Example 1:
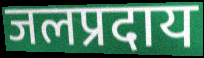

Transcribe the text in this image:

जलप्रदाय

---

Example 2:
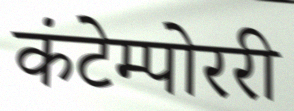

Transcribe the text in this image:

कंटेम्पोररी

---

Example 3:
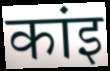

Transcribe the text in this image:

कांइ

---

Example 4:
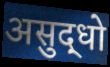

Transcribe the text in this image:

असुद्धो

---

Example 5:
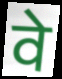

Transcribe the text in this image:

वे